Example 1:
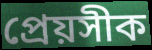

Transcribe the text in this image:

প্ৰেয়সীক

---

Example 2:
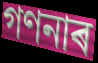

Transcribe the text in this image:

গণনাৰ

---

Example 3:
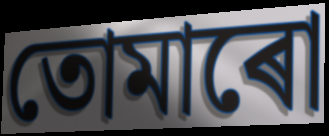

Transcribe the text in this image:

তোমাৰো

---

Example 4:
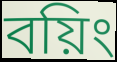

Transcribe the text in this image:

বয়িং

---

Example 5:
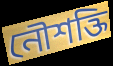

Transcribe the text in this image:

নৌশক্তি